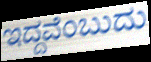
ಇದ್ದವೆಂಬುದು